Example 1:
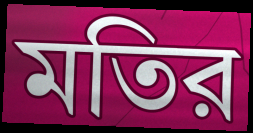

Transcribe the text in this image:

মতির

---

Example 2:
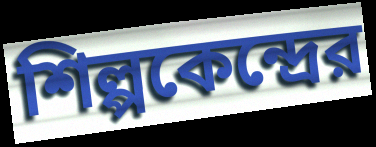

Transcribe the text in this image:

শিল্পকেন্দ্রের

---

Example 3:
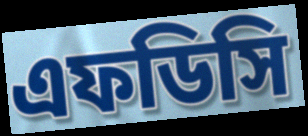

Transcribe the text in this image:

এফডিসি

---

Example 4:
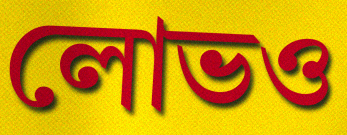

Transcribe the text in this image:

লোভও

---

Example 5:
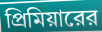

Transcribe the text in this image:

প্রিমিয়ারের